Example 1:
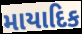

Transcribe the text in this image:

માયાદિક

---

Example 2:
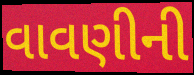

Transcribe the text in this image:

વાવણીની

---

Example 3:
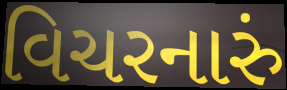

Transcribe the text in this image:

વિચરનારું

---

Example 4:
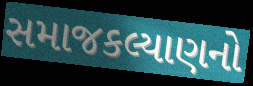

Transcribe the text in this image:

સમાજકલ્યાણનો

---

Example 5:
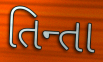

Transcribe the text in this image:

તિન્તા